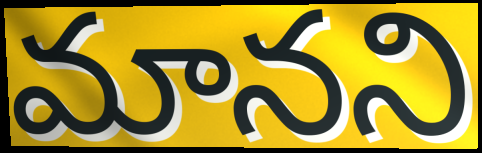
మానని